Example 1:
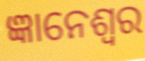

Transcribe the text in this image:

ଜ୍ଞାନେଶ୍ୱର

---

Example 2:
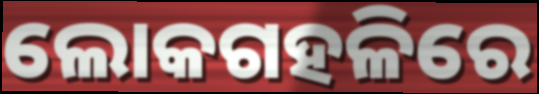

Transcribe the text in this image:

ଲୋକଗହଳିରେ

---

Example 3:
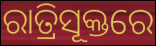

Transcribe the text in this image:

ରାତ୍ରିସୂକ୍ତରେ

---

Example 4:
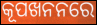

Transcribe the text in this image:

କୂପଖନନରେ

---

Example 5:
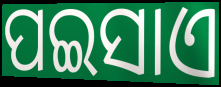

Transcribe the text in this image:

ପଇସାଏ